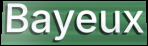
Bayeux